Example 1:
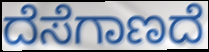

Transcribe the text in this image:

ದೆಸೆಗಾಣದೆ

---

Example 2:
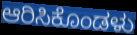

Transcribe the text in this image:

ಆರಿಸಿಕೊಂಡಳು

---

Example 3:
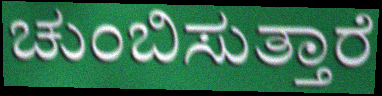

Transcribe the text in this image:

ಚುಂಬಿಸುತ್ತಾರೆ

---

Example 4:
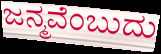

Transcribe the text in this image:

ಜನ್ಮವೆಂಬುದು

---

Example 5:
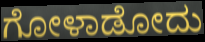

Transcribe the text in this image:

ಗೋಳಾಡೋದು